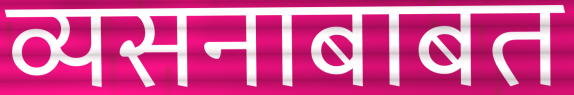
व्यसनाबाबत